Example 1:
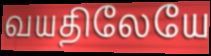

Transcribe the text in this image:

வயதிலேயே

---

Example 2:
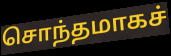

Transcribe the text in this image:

சொந்தமாகச்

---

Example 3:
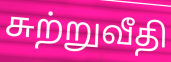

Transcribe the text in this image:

சுற்றுவீதி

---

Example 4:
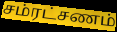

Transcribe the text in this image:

சம்ரட்சணம்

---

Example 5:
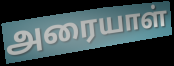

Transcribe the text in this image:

அரையாள்